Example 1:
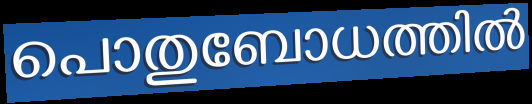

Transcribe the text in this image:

പൊതുബോധത്തിൽ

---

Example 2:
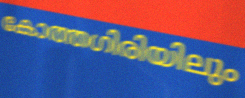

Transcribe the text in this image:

കോത്തഗിരിയിലും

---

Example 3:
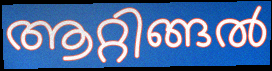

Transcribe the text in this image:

ആറ്റിങ്ങൽ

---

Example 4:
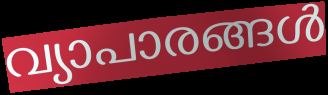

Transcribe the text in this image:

വ്യാപാരങ്ങൾ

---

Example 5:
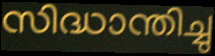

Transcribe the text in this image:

സിദ്ധാന്തിച്ചു